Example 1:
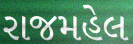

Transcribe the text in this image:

રાજમહેલ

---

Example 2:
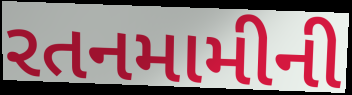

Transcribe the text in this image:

રતનમામીની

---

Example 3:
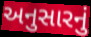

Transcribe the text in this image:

અનુસારનું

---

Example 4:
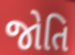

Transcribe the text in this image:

જોતિ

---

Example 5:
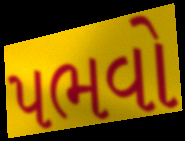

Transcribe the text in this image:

પભવો